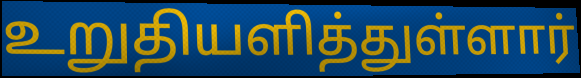
உறுதியளித்துள்ளார்